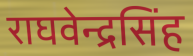
राघवेन्द्रसिंह